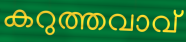
കറുത്തവാവ്